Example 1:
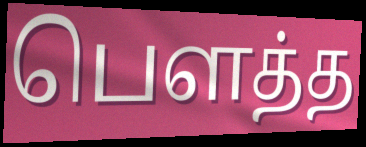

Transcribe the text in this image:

பௌத்த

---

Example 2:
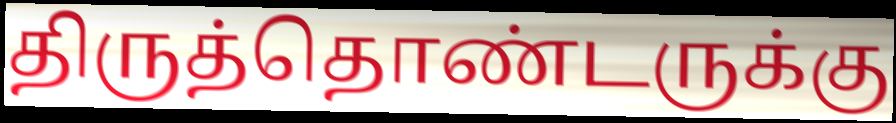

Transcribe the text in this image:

திருத்தொண்டருக்கு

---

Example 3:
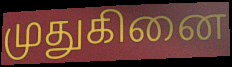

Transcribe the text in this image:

முதுகினை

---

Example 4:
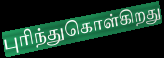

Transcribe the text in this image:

புரிந்துகொள்கிறது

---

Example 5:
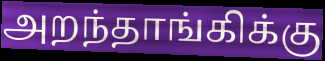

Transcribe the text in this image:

அறந்தாங்கிக்கு